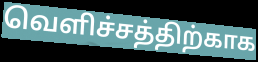
வெளிச்சத்திற்காக